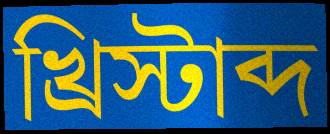
খ্রিস্টাব্দ